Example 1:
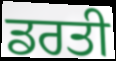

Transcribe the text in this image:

ਡਰਤੀ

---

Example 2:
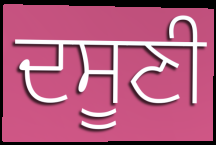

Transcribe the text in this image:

ਦਸੂਣੀ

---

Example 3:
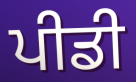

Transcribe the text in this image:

ਪੀਡੀ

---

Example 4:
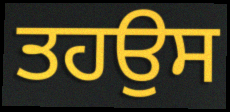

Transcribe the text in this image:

ਤਹਉਸ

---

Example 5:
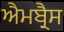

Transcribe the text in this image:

ਐਮਬ੍ਰੈਸ